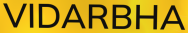
VIDARBHA